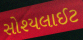
સોશ્યલાઈટ